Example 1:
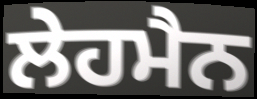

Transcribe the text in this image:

ਲੇਹਮੈਨ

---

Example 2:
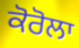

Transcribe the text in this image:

ਕੋਰੋਲਾ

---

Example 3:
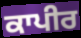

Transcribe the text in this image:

ਕਾਪੀਰ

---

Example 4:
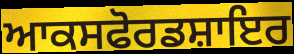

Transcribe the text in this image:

ਆਕਸਫੋਰਡਸ਼ਾਇਰ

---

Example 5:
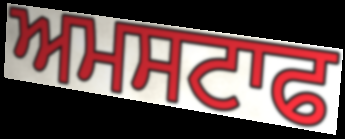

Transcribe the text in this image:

ਅਮਸਟਾਫ